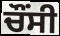
ਚੌਂਸੀ